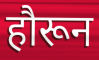
हौरून